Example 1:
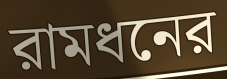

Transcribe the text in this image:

রামধনের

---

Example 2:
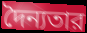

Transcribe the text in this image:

দৈন্যতার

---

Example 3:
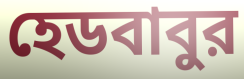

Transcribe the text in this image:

হেডবাবুর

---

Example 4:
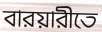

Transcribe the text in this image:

বারয়ারীতে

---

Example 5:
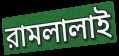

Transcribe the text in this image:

রামলালাই